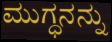
ಮುಗ್ಧನನ್ನು